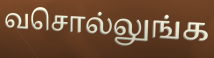
வசொல்லுங்க